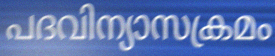
പദവിന്യാസക്രമം